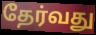
தேர்வது